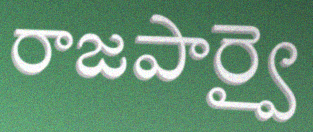
రాజపార్వై